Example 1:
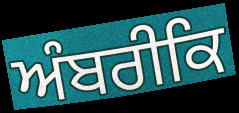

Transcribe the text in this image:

ਅੰਬਰੀਕਿ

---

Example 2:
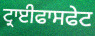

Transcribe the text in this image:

ਟ੍ਰਾਈਫਾਸਫੇਟ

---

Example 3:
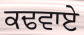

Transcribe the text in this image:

ਕਢਵਾਏ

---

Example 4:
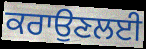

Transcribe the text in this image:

ਕਰਾਉਣਲਈ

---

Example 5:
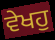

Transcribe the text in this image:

ਵੇਖਹੁ